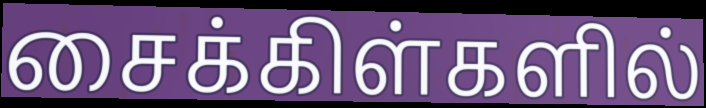
சைக்கிள்களில்